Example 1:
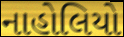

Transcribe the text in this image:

નાહોલિયો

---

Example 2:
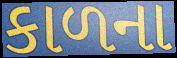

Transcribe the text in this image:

કાળના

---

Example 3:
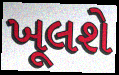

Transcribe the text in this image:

ખૂલશે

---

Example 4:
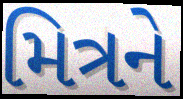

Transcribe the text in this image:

મિત્રને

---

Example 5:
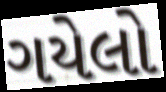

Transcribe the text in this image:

ગયેલો